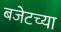
बजेटच्या